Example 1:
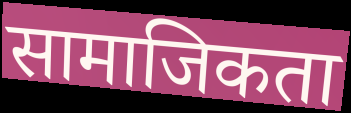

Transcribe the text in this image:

सामाजिकता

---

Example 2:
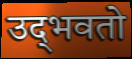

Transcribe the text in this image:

उद्‌भवतो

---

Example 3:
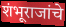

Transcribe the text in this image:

शंभूराजांचे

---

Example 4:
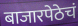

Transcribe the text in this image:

बाजारपेठेचं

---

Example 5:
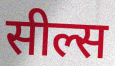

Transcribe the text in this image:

सील्स